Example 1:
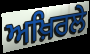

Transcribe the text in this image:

ਅਖ਼ਿਰਲੇ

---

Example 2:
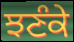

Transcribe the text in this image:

ਝਣੰਕੇ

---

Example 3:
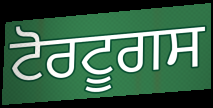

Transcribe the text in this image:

ਟੋਰਟੂਗਸ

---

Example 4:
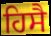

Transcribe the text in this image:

ਹਿਸੈ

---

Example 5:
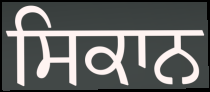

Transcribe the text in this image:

ਸਿਕਾਨ